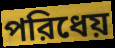
পরিধেয়